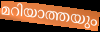
മറിയാത്തയും